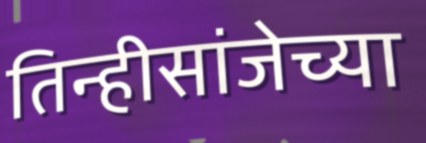
तिन्हीसांजेच्या